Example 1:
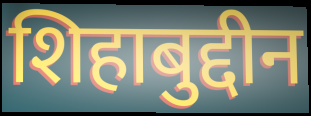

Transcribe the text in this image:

शिहाबुद्दीन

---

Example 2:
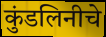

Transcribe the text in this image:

कुंडलिनीचे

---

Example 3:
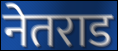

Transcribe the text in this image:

नेतराड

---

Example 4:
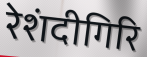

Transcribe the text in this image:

रेशंदीगिरि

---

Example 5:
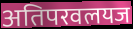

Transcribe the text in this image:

अतिपरवलयज